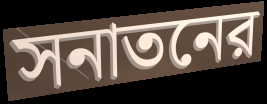
সনাতনের